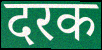
दरक